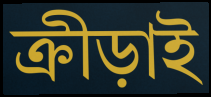
ক্রীড়াই